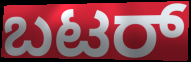
ಬಟರ್